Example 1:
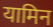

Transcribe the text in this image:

यामिन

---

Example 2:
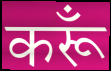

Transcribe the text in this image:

करूँ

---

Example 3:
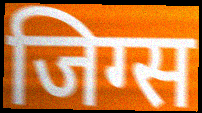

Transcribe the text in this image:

जिग्स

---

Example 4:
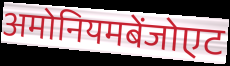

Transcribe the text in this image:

अमोनियमबेंजोएट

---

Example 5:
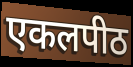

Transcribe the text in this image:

एकलपीठ